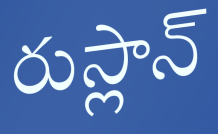
రుస్లాన్